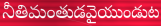
నీతిమంతుడవైయుండుట